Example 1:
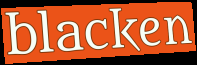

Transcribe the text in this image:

blacken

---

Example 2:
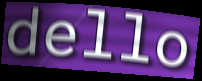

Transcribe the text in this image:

dello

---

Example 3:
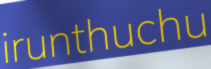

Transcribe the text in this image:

irunthuchu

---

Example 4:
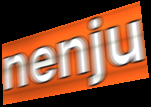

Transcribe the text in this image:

nenju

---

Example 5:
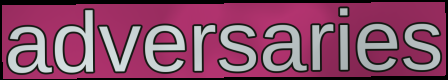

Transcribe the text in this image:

adversaries